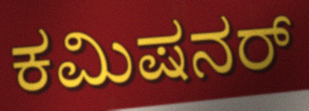
ಕಮಿಷನರ್